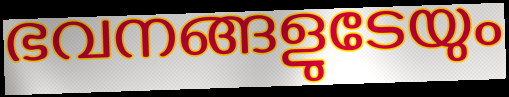
ഭവനങ്ങളുടേയും